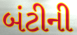
બંટીની